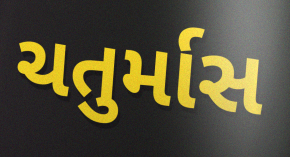
ચતુર્માસ